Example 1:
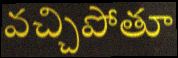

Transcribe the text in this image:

వచ్చిపోతూ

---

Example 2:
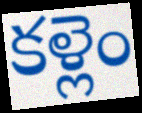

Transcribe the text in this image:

కళ్లెం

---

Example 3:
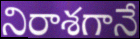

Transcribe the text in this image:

నిరాశగానే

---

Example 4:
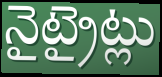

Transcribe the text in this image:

నైట్రైట్లు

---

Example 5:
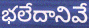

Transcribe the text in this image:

భలేదానివే